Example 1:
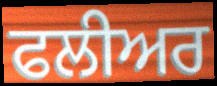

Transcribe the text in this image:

ਫਲੀਅਰ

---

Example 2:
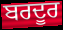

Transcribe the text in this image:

ਬਰਦੂਰ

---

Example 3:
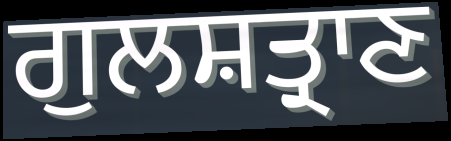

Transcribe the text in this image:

ਗੁਲਸ਼ਤ੍ਰਾਣ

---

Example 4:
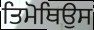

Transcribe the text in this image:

ਤਿਮੋਥਿਉਸ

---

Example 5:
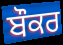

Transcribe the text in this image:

ਬੌਕਰ